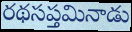
రథసప్తమినాడు